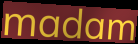
madam